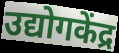
उद्योगकेंद्र